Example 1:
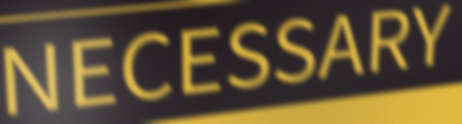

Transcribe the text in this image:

NECESSARY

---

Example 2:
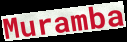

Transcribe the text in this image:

Muramba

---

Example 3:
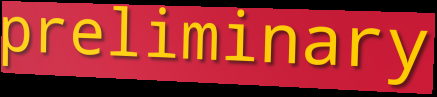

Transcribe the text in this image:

preliminary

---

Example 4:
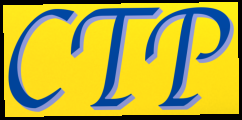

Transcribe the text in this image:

CTP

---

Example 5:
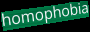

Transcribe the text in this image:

homophobia